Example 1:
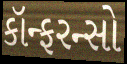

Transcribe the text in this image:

કૉન્ફરન્સો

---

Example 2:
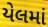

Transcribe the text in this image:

યેલમાં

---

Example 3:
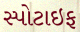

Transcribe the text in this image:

સ્પોટાઇફ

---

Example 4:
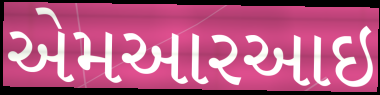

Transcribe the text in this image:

એમઆરઆઇ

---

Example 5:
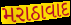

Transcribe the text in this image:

મરાઠાવાદ